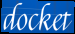
docket